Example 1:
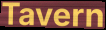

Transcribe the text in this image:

Tavern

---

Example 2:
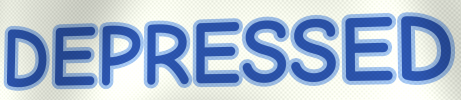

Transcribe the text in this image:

DEPRESSED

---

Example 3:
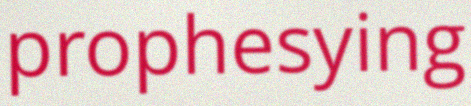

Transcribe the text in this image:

prophesying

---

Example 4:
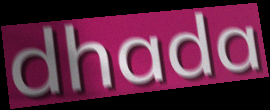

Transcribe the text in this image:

dhada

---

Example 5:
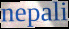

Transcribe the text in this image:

nepali